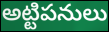
అట్టిపనులు